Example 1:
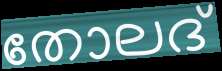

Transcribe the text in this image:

തോലദ്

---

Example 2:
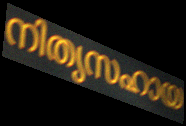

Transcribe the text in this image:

നിത്യസഹായ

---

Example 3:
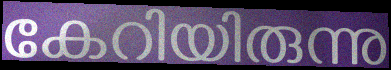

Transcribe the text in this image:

കേറിയിരുന്നു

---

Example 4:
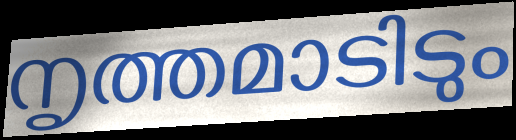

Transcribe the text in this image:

നൃത്തമാടിടും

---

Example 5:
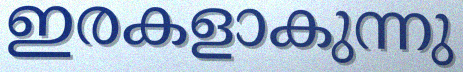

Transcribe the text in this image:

ഇരകളാകുന്നു